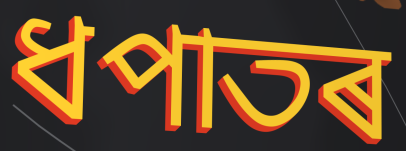
ধপাতৰ